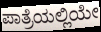
ಪಾತ್ರೆಯಲ್ಲಿಯೇ